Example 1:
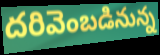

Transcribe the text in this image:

దరివెంబడినున్న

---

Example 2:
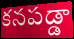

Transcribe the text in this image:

కనపడ్డా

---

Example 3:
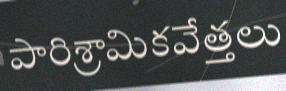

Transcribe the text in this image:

పారిశ్రామికవేత్తలు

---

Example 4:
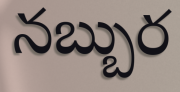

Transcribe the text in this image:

నబ్బుర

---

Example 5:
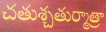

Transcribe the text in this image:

చతుశ్చతుర్మాత్రా